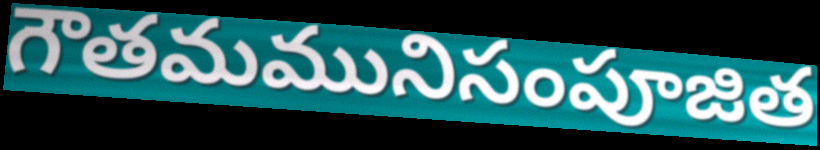
గౌతమమునిసంపూజిత